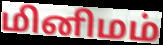
மினிமம்